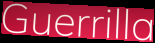
Guerrilla